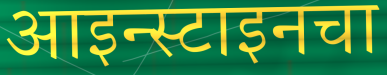
आइन्स्टाइनचा